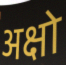
अक्षो